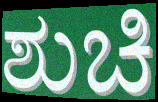
ಶುಚಿ